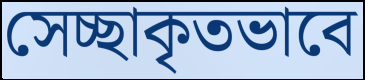
সেচ্ছাকৃতভাবে